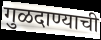
गुळदाण्याची